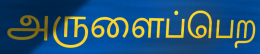
அருளைப்பெற